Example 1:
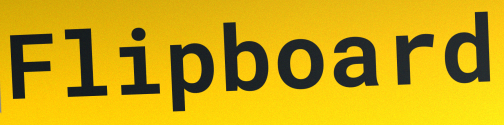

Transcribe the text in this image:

Flipboard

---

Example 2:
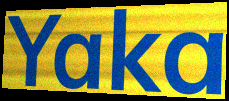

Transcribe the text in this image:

Yaka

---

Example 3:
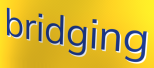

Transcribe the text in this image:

bridging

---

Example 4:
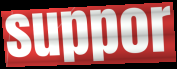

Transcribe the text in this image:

suppor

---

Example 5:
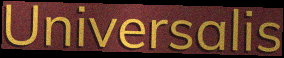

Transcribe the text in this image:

Universalis